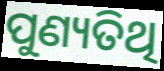
ପୁଣ୍ୟତିଥି